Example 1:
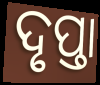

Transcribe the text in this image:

ଦୃପ୍ତା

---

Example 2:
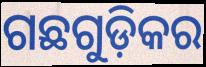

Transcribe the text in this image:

ଗଛଗୁଡ଼ିକର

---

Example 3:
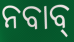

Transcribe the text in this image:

ନବାବ୍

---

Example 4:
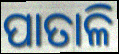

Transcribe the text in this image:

ପାତାଳି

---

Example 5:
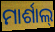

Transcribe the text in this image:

ମାର୍ଶାଲ୍